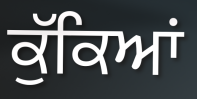
ਕੁੱਕਿਆਂ